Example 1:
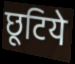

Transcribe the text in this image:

छूटिये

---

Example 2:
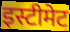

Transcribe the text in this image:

इस्टीमेट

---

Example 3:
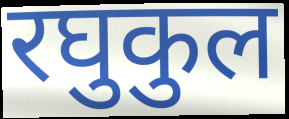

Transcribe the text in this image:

रघुकुल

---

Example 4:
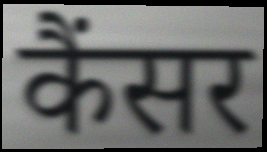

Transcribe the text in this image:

कैंसर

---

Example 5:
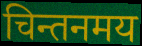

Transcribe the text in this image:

चिन्तनमय